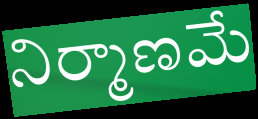
నిర్మాణమే